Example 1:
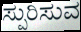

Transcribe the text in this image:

ಸ್ಪುರಿಸುವ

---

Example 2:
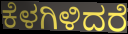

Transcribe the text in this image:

ಕೆಳಗಿಳಿದರೆ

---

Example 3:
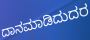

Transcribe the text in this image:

ದಾನಮಾಡಿದುದರ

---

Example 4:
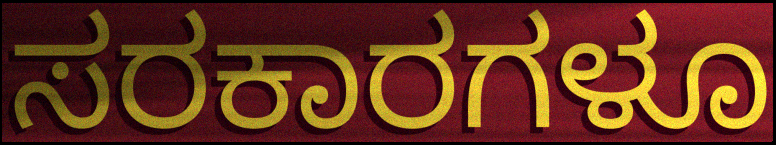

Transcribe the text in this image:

ಸರಕಾರಗಳೂ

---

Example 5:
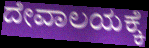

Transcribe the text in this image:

ದೇವಾಲಯಕ್ಕೆ